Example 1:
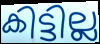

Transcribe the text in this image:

കിട്ടില്ല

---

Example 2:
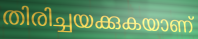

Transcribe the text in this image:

തിരിച്ചയക്കുകയാണ്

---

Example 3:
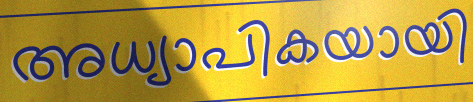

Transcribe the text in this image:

അധ്യാപികയായി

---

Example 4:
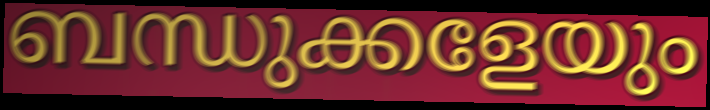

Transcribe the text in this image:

ബന്ധുക്കളേയും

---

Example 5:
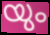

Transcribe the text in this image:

യും